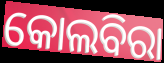
କୋଲବିରା